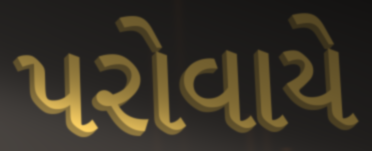
પરોવાયે